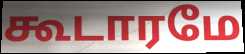
கூடாரமே